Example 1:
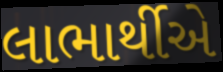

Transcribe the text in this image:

લાભાર્થીએ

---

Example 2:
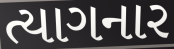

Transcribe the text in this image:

ત્યાગનાર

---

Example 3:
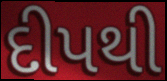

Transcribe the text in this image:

દીપથી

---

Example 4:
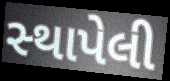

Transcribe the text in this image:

સ્‍થાપેલી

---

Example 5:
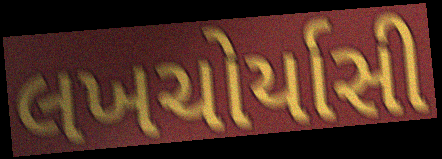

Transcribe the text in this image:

લખચોર્યાસી